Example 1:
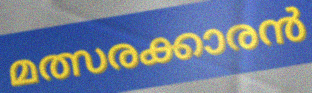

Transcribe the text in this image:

മത്സരക്കാരൻ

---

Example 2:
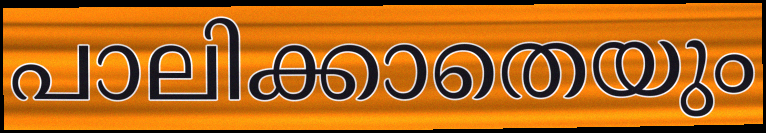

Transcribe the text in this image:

പാലിക്കാതെയും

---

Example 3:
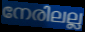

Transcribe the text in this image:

നേരിലല്ല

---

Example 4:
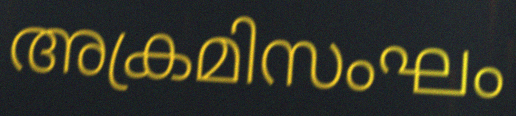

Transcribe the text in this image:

അക്രമിസംഘം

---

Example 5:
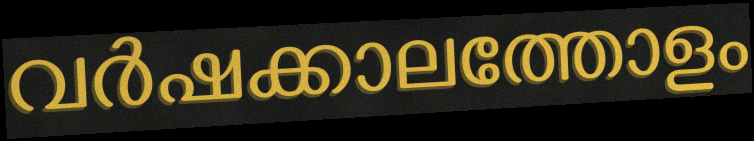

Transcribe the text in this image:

വർഷക്കാലത്തോളം